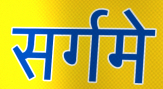
सर्गमे